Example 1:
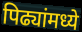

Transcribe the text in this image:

पिढ्यांमध्ये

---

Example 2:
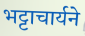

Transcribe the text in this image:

भट्टाचार्यने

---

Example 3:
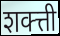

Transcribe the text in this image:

शक्त्ती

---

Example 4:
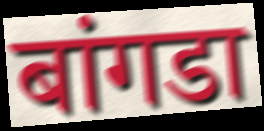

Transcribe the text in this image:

बांगडा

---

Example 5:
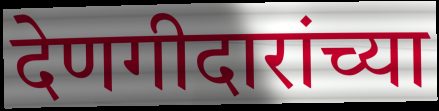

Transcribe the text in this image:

देणगीदारांच्या